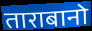
ताराबानो